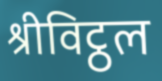
श्रीविट्ठल